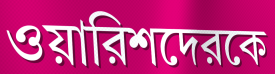
ওয়ারিশদেরকে